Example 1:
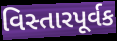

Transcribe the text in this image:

વિસ્તારપૂર્વક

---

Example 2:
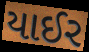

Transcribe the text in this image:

યાઈર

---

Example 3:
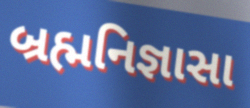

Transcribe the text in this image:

બ્રહ્મનિજ્ઞાસા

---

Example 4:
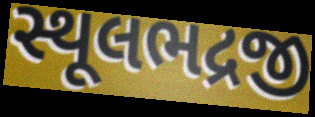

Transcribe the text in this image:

સ્થૂલભદ્રજી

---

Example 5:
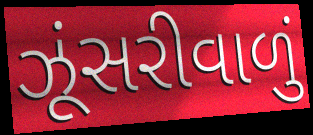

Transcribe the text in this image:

ઝૂંસરીવાળું